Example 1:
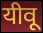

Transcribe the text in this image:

यीवू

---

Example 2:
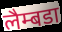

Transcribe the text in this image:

लैम्बडा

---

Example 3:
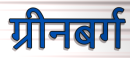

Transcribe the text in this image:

ग्रीनबर्ग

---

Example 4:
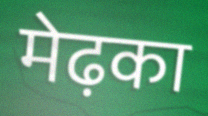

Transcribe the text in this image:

मेढ़का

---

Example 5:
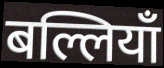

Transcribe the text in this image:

बल्लियाँ